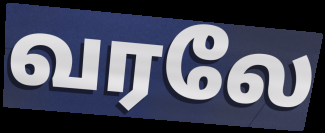
வரலே